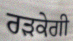
ਰੜਕੇਗੀ